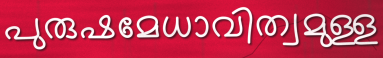
പുരുഷമേധാവിത്വമുള്ള